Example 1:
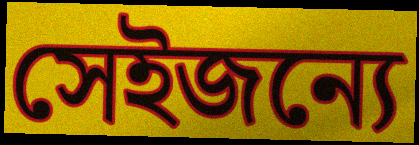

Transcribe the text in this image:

সেইজন্যে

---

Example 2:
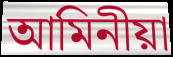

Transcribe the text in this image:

আমিনীয়া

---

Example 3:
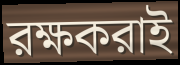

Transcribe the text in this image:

রক্ষকরাই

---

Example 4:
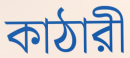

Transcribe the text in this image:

কাঠারী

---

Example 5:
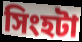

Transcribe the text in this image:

সিংহটা